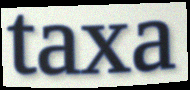
taxa